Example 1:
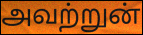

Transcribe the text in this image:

அவற்றுன்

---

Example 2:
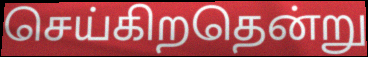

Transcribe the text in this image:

செய்கிறதென்று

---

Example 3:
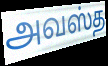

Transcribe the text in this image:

அவஸ்த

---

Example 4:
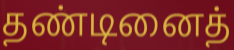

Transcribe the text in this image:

தண்டினைத்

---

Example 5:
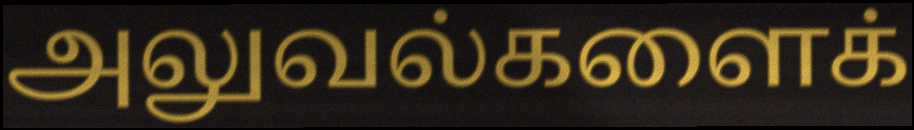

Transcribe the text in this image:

அலுவல்களைக்